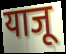
याजू